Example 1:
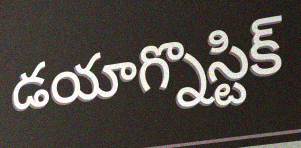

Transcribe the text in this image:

డయాగ్నొస్టిక్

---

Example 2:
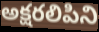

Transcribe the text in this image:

అక్షరలిపిని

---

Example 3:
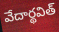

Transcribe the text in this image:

వేదార్థవిత్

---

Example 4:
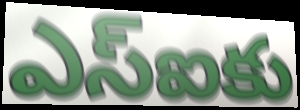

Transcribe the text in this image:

ఎస్ఐకు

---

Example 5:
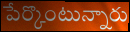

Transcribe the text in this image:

పేర్కొంటున్నారు